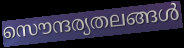
സൌന്ദര്യതലങ്ങൾ